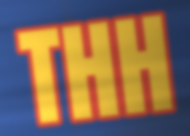
THH